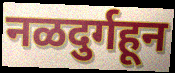
नळदुर्गहून